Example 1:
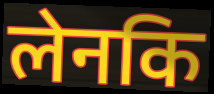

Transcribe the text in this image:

लेनकि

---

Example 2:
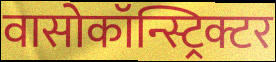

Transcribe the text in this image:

वासोकॉन्स्ट्रिक्टर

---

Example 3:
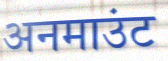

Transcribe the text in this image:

अनमाउंट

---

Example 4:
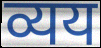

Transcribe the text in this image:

व्यय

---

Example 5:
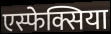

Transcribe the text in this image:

एस्फेक्सिया